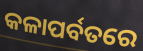
କଳାପର୍ବତରେ